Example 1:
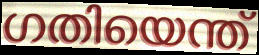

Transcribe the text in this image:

ഗതിയെന്ത്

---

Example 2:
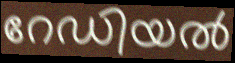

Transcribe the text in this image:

റേഡിയൽ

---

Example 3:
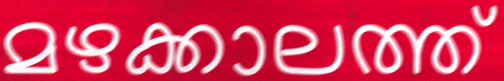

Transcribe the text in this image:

മഴക്കാലത്ത്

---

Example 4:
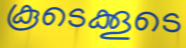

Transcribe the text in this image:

കൂടെക്കൂടെ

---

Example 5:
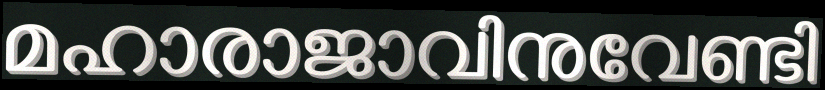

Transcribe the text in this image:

മഹാരാജാവിനുവേണ്ടി